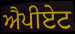
ਐਪੀਏਟ